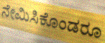
ನೇಮಿಸಿಕೊಂಡರೂ